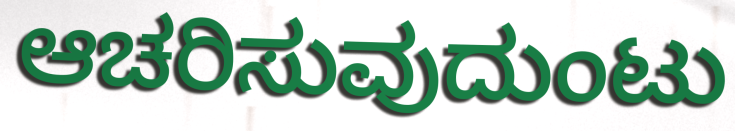
ಆಚರಿಸುವುದುಂಟು